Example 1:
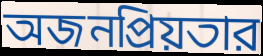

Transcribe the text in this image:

অজনপ্রিয়তার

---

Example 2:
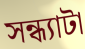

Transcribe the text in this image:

সন্ধ্যাটা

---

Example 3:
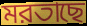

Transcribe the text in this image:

মরতাছে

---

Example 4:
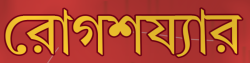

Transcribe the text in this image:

রোগশয্যার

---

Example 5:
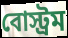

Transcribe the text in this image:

বোস্ট্রম